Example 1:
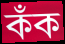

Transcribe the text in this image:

কঁক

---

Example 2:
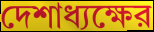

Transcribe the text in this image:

দেশাধ্যক্ষের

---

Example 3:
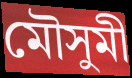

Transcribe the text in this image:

মৌসুমী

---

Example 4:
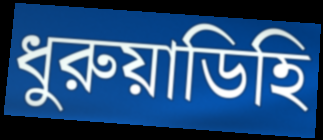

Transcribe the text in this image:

ধুরুয়াডিহি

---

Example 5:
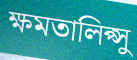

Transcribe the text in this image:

ক্ষমতালিপ্সু